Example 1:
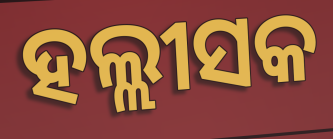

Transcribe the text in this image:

ହଲ୍ଲୀସକ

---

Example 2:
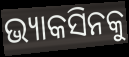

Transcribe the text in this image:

ଭ୍ୟାକସିନକୁ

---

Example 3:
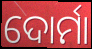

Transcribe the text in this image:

ଦୋର୍ମା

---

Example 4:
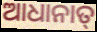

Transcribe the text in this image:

ଆଧାନାତ୍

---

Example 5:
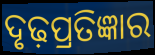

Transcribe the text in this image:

ଦୃଢ଼ପ୍ରତିଜ୍ଞାର